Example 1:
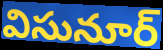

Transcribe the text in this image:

విసునూర్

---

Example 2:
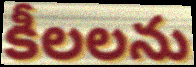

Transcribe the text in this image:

కీలలను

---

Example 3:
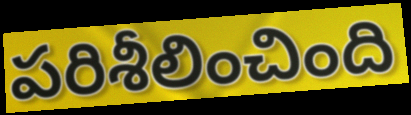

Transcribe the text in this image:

పరిశీలించింది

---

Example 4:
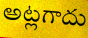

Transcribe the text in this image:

అట్లగాదు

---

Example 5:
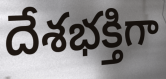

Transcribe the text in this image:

దేశభక్తిగా